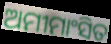
ଅମୀମାଂସିତ